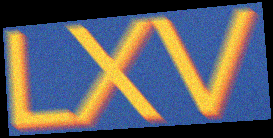
LXV